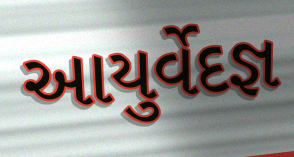
આયુર્વેદજ્ઞ